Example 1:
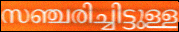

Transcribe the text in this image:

സഞ്ചരിച്ചിട്ടുള്ള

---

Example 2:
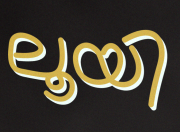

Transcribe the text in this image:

ലൂയി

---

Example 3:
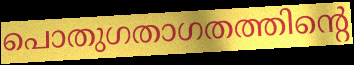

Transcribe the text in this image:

പൊതുഗതാഗതത്തിന്റെ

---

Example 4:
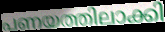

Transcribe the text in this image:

പണയത്തിലാക്കി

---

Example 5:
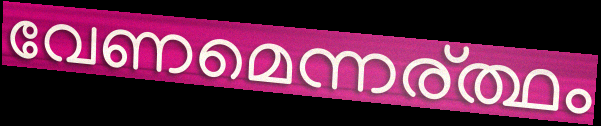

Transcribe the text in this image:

വേണമെന്നര്ത്ഥം